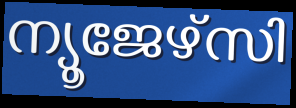
ന്യൂജേഴ്സി